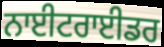
ਨਾਈਟਰਾਈਡਰ